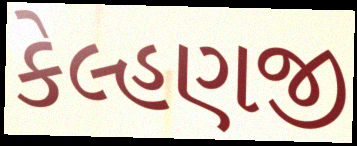
કેલ્હણજી